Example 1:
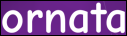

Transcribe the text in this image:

ornata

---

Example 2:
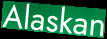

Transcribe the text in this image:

Alaskan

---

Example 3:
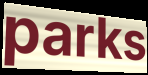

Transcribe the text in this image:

parks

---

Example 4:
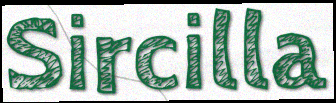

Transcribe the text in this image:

Sircilla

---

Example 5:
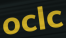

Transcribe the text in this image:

oclc